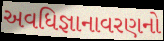
અવધિજ્ઞાનાવરણનો